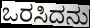
ಒರಸಿದನು